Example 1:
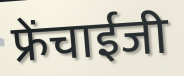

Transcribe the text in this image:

फ्रेंचाईजी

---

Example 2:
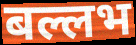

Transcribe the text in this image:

बल्लभ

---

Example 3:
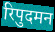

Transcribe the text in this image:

रिपुदमन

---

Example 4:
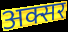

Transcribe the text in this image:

अक्सर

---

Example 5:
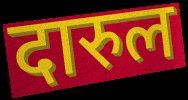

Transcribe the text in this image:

दारुल